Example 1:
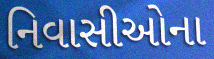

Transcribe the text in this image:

નિવાસીઓના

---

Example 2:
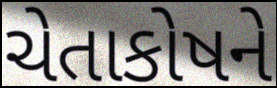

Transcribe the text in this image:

ચેતાકોષને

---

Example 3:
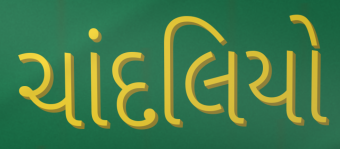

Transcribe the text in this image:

ચાંદલિયો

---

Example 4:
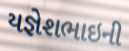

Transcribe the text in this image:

યજ્ઞેશભાઇની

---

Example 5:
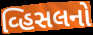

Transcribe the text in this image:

વ્હિસલનો